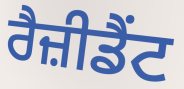
ਰੈਜ਼ੀਡੈਂਟ